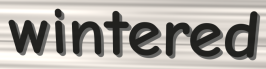
wintered